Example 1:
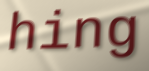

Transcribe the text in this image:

hing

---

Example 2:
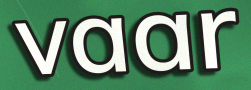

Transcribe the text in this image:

vaar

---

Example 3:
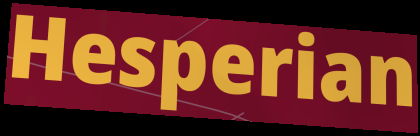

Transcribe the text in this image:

Hesperian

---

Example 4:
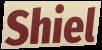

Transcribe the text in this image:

Shiel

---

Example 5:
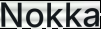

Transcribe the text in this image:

Nokka